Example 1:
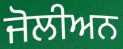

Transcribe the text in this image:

ਜੋਲੀਅਨ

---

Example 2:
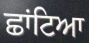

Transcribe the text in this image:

ਛਾਂਟਿਆ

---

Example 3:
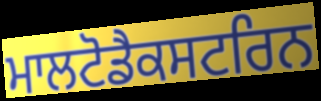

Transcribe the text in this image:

ਮਾਲਟੋਡੈਕਸਟਰਿਨ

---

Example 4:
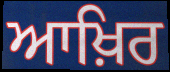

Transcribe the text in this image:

ਆਖ਼ਿਰ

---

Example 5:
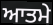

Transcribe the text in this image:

ਆਤਮੇ